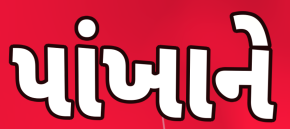
પાંખાને